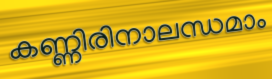
കണ്ണിരിനാലന്ധമാം